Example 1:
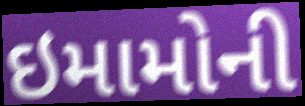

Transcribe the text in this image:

ઇમામોની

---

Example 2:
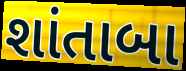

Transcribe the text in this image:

શાંતાબા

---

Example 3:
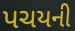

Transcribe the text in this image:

પચયની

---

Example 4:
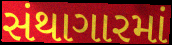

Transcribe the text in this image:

સંથાગારમાં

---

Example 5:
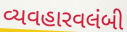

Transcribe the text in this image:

વ્યવહારવલંબી